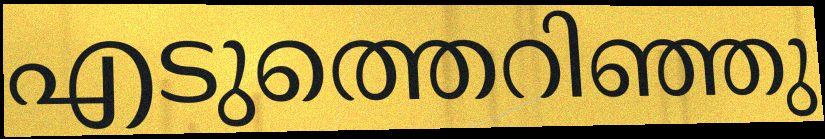
എടുത്തെറിഞ്ഞു